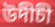
উদীচী